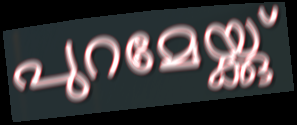
പുറമേയ്ക്കു്